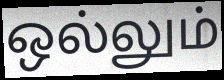
ஒல்லும்